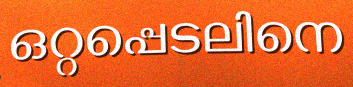
ഒറ്റപ്പെടലിനെ